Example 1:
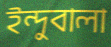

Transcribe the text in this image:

ইন্দুবালা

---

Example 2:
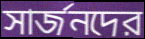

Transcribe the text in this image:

সার্জনদের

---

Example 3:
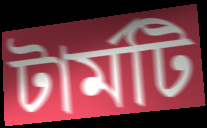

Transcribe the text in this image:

টার্মটি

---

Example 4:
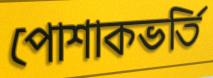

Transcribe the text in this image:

পোশাকভর্তি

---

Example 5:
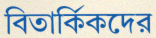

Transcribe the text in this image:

বিতার্কিকদের